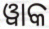
ୱାକ